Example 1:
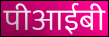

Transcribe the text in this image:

पीआईबी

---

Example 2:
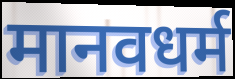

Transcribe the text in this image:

मानवधर्म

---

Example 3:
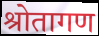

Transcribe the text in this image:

श्रोतागण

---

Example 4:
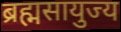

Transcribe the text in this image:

ब्रह्मसायुज्य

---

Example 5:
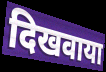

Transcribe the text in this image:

दिखवाया